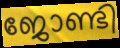
ജോണ്ടി